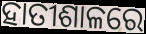
ହାତୀଶାଳରେ